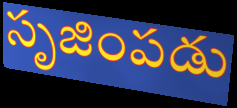
సృజింపడు